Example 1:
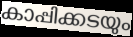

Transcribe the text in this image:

കാപ്പിക്കടയും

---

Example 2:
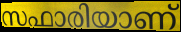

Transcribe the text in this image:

സഫാരിയാണ്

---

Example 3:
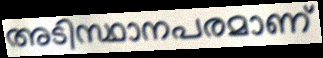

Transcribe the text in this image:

അടിസ്ഥാനപരമാണ്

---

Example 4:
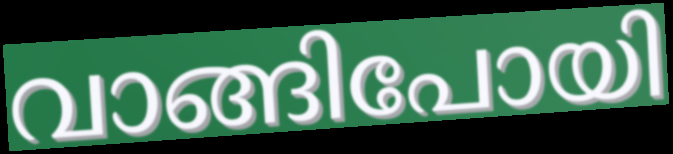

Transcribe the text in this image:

വാങ്ങിപോയി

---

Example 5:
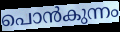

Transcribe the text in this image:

പൊൻകുന്നം